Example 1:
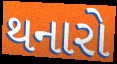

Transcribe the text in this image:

થનારો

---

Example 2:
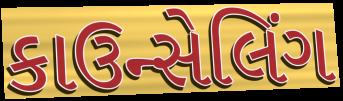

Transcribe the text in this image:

કાઉન્સેલિંગ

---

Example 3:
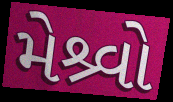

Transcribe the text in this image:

મેશ્ર્વો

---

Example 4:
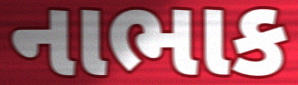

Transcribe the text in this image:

નાભાક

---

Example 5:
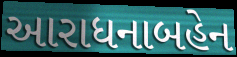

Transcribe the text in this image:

આરાધનાબહેન